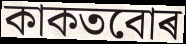
কাকতবোৰ